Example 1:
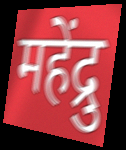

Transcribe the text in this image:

महेंद्रु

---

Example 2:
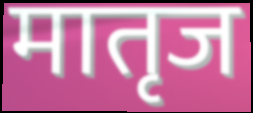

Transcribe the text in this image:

मातृज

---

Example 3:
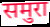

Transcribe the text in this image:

समुरा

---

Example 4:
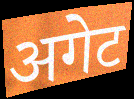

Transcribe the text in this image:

अगेट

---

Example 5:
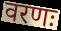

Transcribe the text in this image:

वरणः